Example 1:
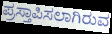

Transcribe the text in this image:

ಪ್ರಸ್ತಾಪಿಸಲಾಗಿರುವ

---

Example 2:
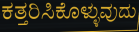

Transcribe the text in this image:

ಕತ್ತರಿಸಿಕೊಳ್ಳುವುದು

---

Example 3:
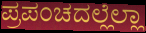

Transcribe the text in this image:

ಪ್ರಪಂಚದಲ್ಲೆಲ್ಲಾ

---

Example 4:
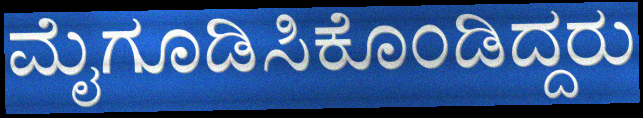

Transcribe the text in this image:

ಮೈಗೂಡಿಸಿಕೊಂಡಿದ್ದರು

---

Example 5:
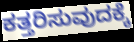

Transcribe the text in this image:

ಕತ್ತರಿಸುವುದಕ್ಕೆ